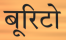
बूरिटो